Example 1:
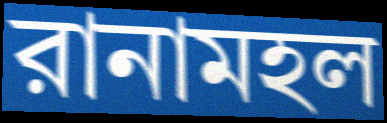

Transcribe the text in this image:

রানামহল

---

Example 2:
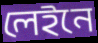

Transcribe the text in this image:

লেইনে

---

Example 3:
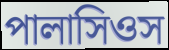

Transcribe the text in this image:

পালাসিওস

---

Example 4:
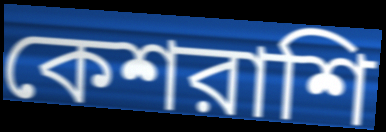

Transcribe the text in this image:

কেশরাশি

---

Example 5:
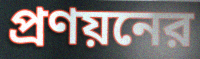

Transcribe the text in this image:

প্রণয়নের